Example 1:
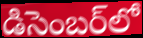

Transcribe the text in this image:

డిసెంబర్‌లో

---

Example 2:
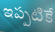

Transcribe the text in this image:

ఇప్పటికే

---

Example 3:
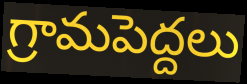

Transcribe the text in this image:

గ్రామపెద్దలు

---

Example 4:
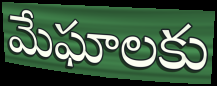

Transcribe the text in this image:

మేఘాలకు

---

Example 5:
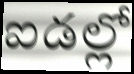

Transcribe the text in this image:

ఐడల్లో